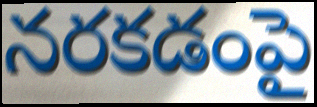
నరకడంపై